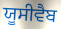
ਯੂਸੀਵੈਬ